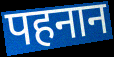
पहनान